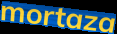
mortaza